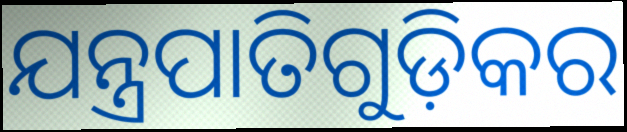
ଯନ୍ତ୍ରପାତିଗୁଡ଼ିକର